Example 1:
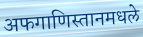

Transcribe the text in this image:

अफगाणिस्तानमधले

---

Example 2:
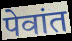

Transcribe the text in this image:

पेवांत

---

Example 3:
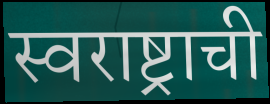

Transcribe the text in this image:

स्वराष्ट्राची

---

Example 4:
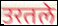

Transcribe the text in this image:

उरतले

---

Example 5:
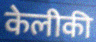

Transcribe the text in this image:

केलीकी